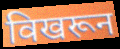
विखरून